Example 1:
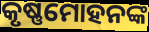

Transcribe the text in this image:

କୃଷ୍ଣମୋହନଙ୍କ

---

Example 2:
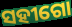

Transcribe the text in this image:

ସହୀଗୋ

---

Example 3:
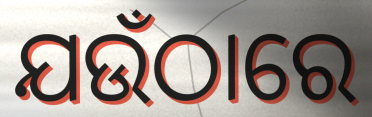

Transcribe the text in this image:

ଯଉଁଠାରେ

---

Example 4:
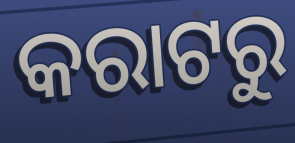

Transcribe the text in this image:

କରାଟରୁ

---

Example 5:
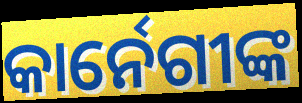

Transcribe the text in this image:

କାର୍ନେଗୀଙ୍କ